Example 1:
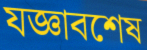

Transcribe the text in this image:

যজ্ঞাবশেষ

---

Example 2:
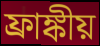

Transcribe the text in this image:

ফ্রাঙ্কীয়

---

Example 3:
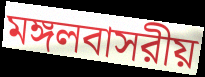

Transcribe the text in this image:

মঙ্গলবাসরীয়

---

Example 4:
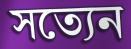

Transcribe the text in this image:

সত্যেন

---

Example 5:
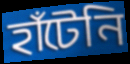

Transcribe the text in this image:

হাঁটেনি